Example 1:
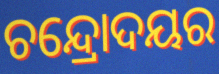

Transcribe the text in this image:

ଚନ୍ଦ୍ରୋଦୟର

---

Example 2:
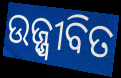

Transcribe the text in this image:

ଉଜ୍ଜ୍ୱୀବିତ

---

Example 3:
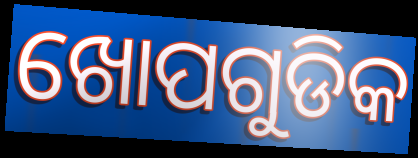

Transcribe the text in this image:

ଖୋପଗୁଡିକ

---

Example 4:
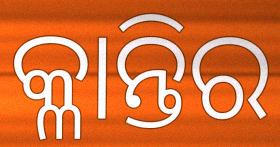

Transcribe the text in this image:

କ୍ଳାନ୍ତିର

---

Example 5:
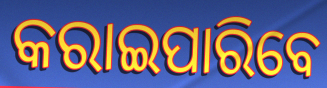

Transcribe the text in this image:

କରାଇପାରିବେ